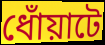
ধোঁয়াটে